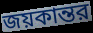
জয়কান্তর